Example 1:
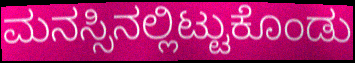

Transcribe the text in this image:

ಮನಸ್ಸಿನಲ್ಲಿಟ್ಟುಕೊಂಡು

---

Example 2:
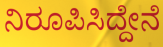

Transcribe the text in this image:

ನಿರೂಪಿಸಿದ್ದೇನೆ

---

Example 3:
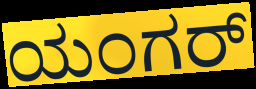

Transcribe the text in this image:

ಯಂಗರ್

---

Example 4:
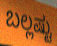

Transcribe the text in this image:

ಬಲ್ಲಷ್ಟು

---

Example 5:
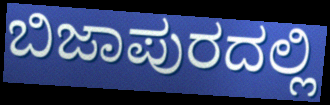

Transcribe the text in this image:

ಬಿಜಾಪುರದಲ್ಲಿ